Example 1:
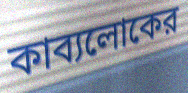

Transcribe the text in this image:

কাব্যলোকের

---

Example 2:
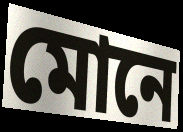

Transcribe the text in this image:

মোনে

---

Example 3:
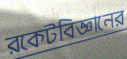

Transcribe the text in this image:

রকেটবিজ্ঞানের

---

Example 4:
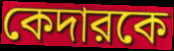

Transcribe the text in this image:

কেদারকে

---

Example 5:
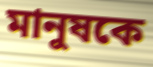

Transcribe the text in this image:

মানুষকে